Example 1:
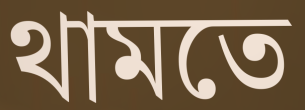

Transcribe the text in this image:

থামতে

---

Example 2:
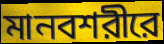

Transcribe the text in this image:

মানবশরীরে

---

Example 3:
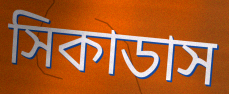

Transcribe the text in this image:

সিকাডাস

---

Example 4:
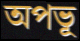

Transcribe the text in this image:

অপভূ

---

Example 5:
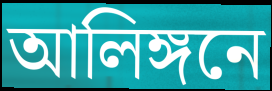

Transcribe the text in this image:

আলিঙ্গনে